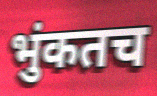
भुंकतच